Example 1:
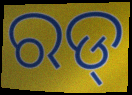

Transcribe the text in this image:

ରଡ୍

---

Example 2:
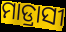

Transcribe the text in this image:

ମାଡ୍ରାସୀ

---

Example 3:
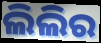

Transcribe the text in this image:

ଲିଲିର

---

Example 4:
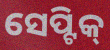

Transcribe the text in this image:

ସେପ୍ଟିକ୍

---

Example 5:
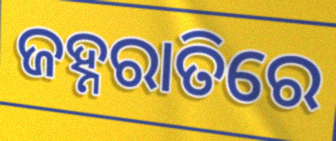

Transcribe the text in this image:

ଜହ୍ନରାତିରେ